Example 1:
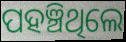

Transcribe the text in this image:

ପହଞ୍ଚିଥିଲେ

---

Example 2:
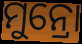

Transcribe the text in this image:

ମୁନ୍ରୋ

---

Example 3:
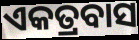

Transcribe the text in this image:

ଏକତ୍ରବାସ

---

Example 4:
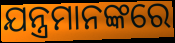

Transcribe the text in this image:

ଯନ୍ତ୍ରମାନଙ୍କରେ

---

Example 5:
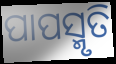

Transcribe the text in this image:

ପାପସ୍ମୃତି